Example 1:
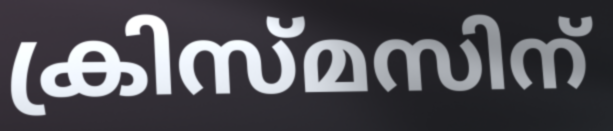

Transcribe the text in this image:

ക്രിസ്മസിന്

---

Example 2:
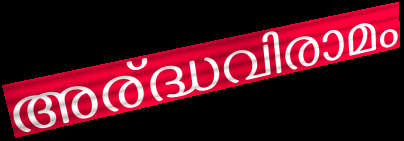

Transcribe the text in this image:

അര്ദ്ധവിരാമം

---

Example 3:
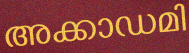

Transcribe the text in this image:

അക്കാഡമി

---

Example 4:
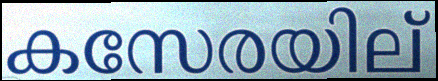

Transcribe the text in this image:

കസേരയില്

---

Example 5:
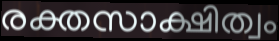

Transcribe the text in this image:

രക്തസാക്ഷിത്വം